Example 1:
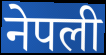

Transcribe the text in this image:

नेपली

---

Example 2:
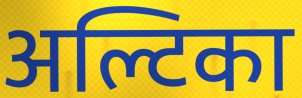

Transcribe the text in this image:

अल्टिका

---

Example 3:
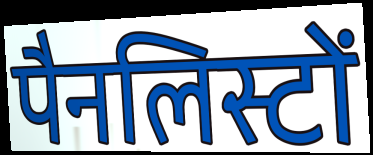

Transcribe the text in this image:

पैनलिस्टों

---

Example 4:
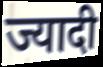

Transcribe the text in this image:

ज्यादी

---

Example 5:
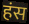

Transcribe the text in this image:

हंस